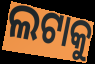
ଲଟାକୁ